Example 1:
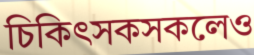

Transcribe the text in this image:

চিকিৎসকসকলেও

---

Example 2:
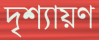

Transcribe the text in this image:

দৃশ্যায়ণ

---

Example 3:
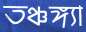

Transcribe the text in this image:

তঞ্চঙ্গ্যা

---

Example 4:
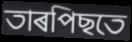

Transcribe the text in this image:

তাৰপিছতে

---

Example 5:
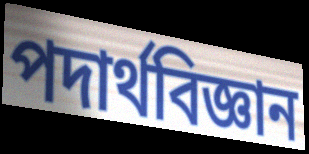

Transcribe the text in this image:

পদাৰ্থবিজ্ঞান